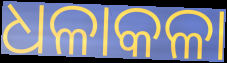
ଧଳାକଳା